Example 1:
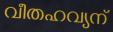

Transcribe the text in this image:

വീതഹവ്യന്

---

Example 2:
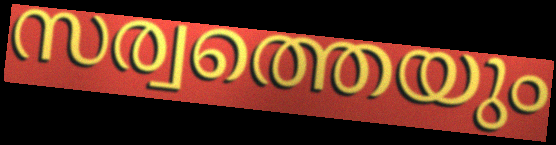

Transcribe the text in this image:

സര്വത്തെയും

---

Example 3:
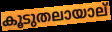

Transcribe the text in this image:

കൂടുതലായാല്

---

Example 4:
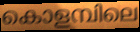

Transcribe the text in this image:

കൊളമ്പിലെ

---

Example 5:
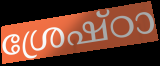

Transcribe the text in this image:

ശ്രേഷ്ഠാ